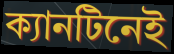
ক্যানটিনেই